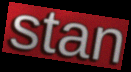
stan